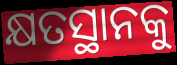
କ୍ଷତସ୍ଥାନକୁ